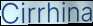
Cirrhina